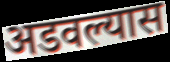
अडवल्यास